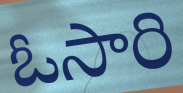
ఓసారి